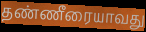
தண்ணீரையாவது